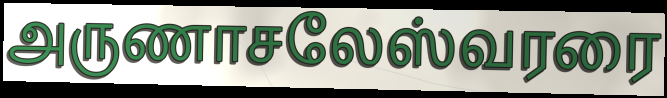
அருணாசலேஸ்வரரை